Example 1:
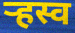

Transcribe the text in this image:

ऱ्हस्व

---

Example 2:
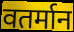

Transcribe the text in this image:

वतर्मान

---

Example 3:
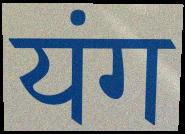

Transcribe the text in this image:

यंग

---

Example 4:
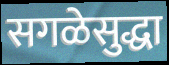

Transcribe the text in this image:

सगळेसुद्धा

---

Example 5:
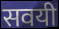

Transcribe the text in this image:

सवयी